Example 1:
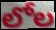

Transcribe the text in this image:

లోల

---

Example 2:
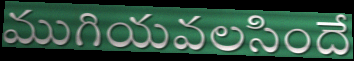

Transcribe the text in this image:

ముగియవలసిందే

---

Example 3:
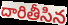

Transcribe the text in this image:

దారితీసిన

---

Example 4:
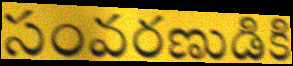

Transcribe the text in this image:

సంవరణుడికి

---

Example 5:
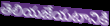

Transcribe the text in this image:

తెలియజేయటానికి